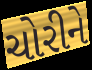
ચોરીને